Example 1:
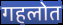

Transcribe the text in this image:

गहलोत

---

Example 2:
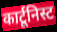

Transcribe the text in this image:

कार्टूनिस्ट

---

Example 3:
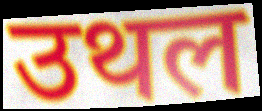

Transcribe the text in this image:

उथल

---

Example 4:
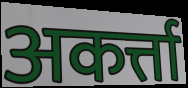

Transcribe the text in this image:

अकर्त्ता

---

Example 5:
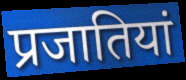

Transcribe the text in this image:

प्रजातियां